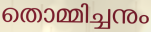
തൊമ്മിച്ചനും